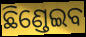
ଛିଣ୍ଡେଇବ